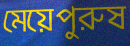
মেয়েপুরুষ